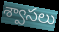
శ్వాసలు